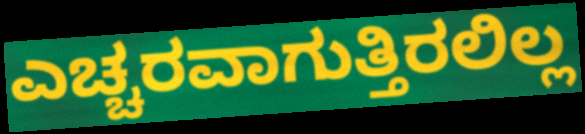
ಎಚ್ಚರವಾಗುತ್ತಿರಲಿಲ್ಲ